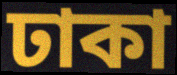
ঢাকা